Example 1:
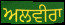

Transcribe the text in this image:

ਅਲਵੀਰਾ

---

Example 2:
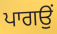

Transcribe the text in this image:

ਪਾਗਉਂ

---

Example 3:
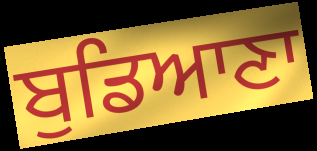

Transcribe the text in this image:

ਬੁਡਿਆਣਾ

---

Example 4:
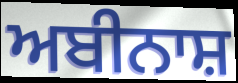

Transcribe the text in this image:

ਅਬੀਨਾਸ਼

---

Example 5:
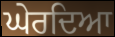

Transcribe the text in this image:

ਘੇਰਦਿਆ